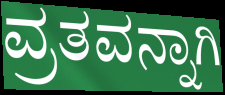
ವ್ರತವನ್ನಾಗಿ